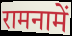
रामनामें